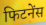
फिटनेंस